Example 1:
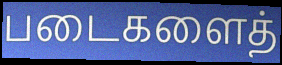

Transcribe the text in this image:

படைகளைத்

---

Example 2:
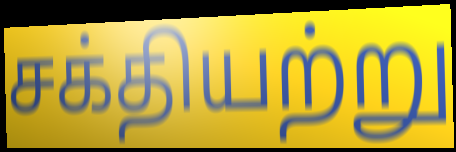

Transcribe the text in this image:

சக்தியற்று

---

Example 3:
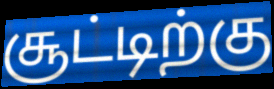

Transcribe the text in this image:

சூட்டிற்கு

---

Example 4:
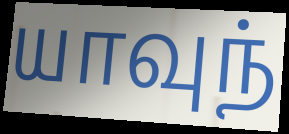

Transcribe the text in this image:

யாவுந்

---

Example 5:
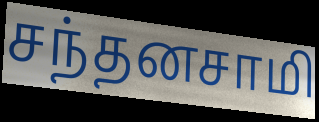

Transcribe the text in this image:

சந்தனசாமி